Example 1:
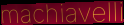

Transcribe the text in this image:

machiavelli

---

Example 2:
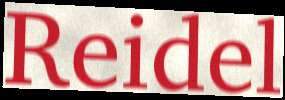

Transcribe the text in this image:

Reidel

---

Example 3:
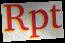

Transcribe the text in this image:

Rpt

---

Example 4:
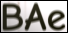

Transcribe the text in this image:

BAe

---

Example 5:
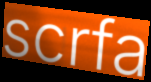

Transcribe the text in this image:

scrfa